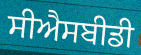
ਸੀਐਸਬੀਡੀ